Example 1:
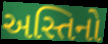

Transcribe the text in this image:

અસ્તિનો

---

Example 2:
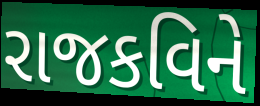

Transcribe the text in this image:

રાજકવિને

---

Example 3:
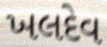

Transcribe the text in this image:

ખલદેવ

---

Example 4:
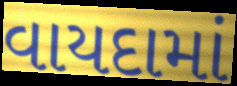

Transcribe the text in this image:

વાયદામાં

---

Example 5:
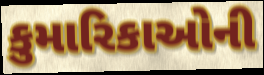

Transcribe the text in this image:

કુમારિકાઓની